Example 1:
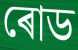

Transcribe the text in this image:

ৰোড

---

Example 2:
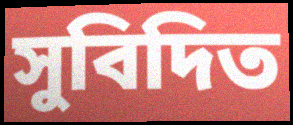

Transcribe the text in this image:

সুবিদিত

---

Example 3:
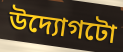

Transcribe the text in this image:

উদ্যোগটো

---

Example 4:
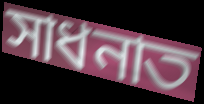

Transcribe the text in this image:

সাধনাত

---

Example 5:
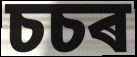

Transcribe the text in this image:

চচৰ